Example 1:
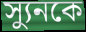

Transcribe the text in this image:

স্যুনকে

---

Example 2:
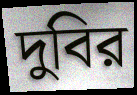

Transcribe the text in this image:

দুবির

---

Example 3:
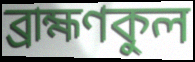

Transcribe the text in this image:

ব্রাহ্মণকুল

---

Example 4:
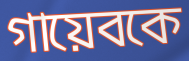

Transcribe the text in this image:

গায়েবকে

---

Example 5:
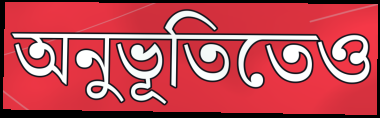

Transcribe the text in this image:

অনুভূতিতেও